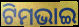
ଟିମଭାଇ